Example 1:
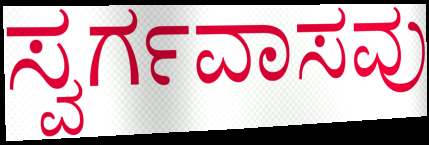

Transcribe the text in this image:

ಸ್ವರ್ಗವಾಸವು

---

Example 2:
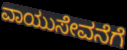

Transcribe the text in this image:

ವಾಯುಸೇವನೆಗೆ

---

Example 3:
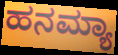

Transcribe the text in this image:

ಹನಮ್ಯಾ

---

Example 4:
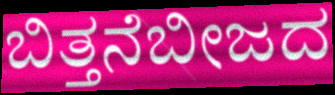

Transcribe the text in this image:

ಬಿತ್ತನೆಬೀಜದ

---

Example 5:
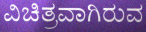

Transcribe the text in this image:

ವಿಚಿತ್ರವಾಗಿರುವ